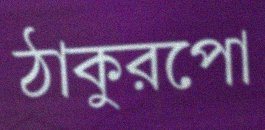
ঠাকুরপো